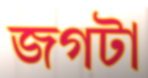
জগটা